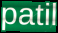
patil